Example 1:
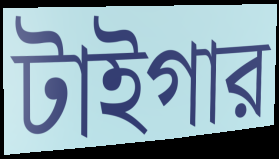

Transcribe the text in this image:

টাইগার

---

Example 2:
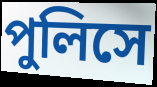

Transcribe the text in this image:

পুলিসে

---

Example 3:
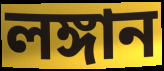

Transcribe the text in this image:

লঙ্গান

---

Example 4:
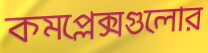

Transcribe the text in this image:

কমপ্লেক্সগুলোর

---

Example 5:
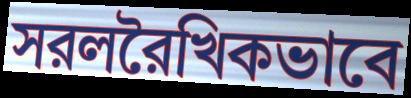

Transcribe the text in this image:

সরলরৈখিকভাবে